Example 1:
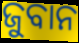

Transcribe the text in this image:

ଜୁବାନ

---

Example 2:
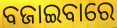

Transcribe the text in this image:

ବଜାଇବାରେ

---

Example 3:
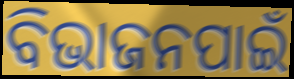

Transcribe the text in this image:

ବିଭାଜନପାଇଁ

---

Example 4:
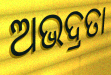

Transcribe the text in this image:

ଅଭଦ୍ରତା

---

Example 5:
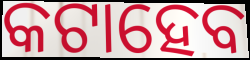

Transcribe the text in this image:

କଟାହେବ